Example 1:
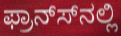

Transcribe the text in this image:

ಫ್ರಾನ್ಸ್‍ನಲ್ಲಿ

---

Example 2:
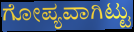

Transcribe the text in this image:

ಗೋಪ್ಯವಾಗಿಟ್ಟು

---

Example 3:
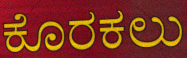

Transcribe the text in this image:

ಕೊರಕಲು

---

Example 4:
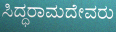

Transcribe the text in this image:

ಸಿದ್ಧರಾಮದೇವರು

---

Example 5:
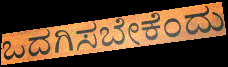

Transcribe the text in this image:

ಒದಗಿಸಬೇಕೆಂದು